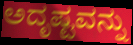
ಅದೃಷ್ಟವನ್ನು